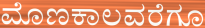
ಮೊಣಕಾಲವರೆಗೂ